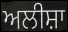
ਅਲੀਸ਼ਾ